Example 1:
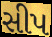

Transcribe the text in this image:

સીપ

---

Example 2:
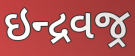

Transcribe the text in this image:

ઇન્દ્રવજ્ર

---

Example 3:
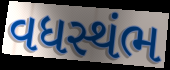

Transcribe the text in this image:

વધસ્થંભ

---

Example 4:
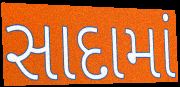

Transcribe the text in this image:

સાદામાં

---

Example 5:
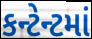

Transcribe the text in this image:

કન્ટેન્ટમાં